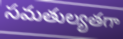
సమతుల్యతగా